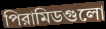
পিরামিডগুলো